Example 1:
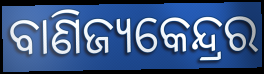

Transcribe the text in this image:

ବାଣିଜ୍ୟକେନ୍ଦ୍ରର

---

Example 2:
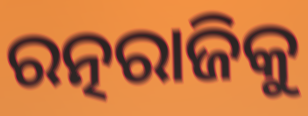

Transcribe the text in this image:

ରତ୍ନରାଜିକୁ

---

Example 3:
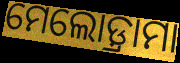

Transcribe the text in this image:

ମେଲୋଡ଼୍ରାମା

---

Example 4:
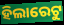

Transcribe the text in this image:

ହିଲାରେଟୁ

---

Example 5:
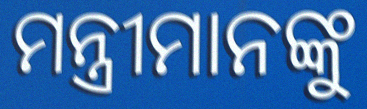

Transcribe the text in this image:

ମନ୍ତ୍ରୀମାନଙ୍କୁ